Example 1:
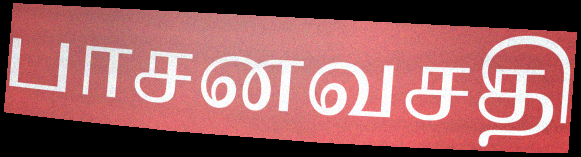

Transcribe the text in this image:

பாசனவசதி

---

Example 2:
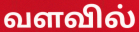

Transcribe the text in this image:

வளவில்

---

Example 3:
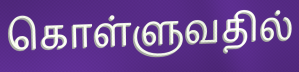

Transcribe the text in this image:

கொள்ளுவதில்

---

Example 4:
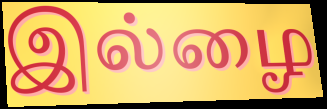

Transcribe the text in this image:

இல்ழை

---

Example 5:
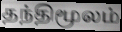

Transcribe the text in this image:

தந்திமூலம்